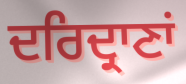
ਦਰਿਦ੍ਰਾਣਾਂ